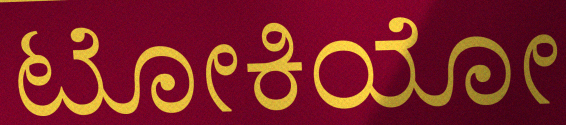
ಟೋಕಿಯೋ